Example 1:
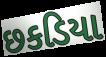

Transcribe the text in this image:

છકડિયા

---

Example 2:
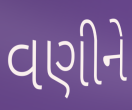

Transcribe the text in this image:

વણીને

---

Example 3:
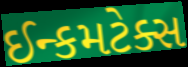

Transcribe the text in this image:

ઈન્કમટેક્સ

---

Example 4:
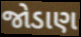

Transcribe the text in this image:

જોડાણ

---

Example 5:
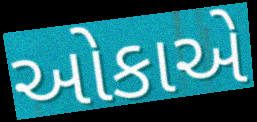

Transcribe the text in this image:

ઓકાએ